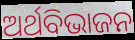
ଅର୍ଥବିଭାଜନ